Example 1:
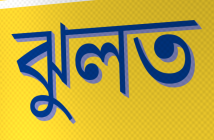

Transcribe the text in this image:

ঝুলত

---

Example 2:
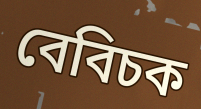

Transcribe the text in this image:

বেবিচক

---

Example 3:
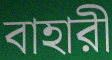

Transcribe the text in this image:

বাহারী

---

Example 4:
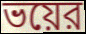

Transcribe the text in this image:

ভয়ের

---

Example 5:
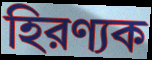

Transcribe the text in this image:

হিরণ্যক